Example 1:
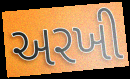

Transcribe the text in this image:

અરખી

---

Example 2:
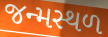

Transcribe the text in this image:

જન્મસ્થળ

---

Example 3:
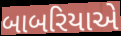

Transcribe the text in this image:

બાબરિયાએ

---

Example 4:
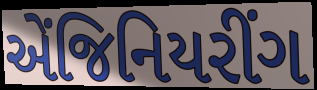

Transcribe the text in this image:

એંજિનિયરીંગ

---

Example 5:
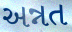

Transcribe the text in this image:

અન્નત